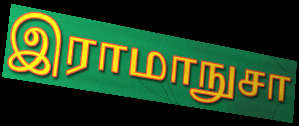
இராமாநுசா